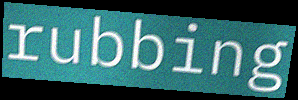
rubbing